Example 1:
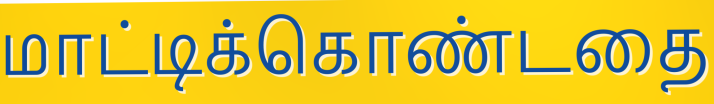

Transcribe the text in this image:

மாட்டிக்கொண்டதை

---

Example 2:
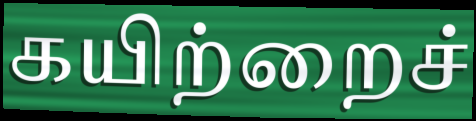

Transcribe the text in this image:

கயிற்றைச்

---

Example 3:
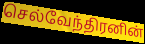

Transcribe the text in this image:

செல்வேந்திரனின்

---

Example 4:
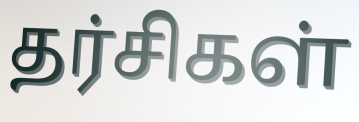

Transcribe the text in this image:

தர்சிகள்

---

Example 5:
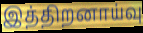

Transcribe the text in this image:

இத்திறனாய்வு